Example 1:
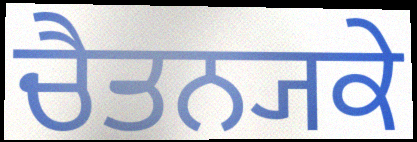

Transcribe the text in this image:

ਚੈਤਨ੍ਯਕੇ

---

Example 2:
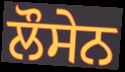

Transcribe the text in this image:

ਲੌਸੇਨ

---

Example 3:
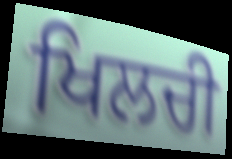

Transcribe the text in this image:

ਖਿਲਚੀ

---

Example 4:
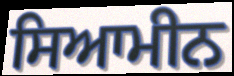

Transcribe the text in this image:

ਸਿਆਮੀਨ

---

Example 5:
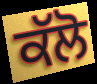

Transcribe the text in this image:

ਕੱਲੋ